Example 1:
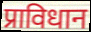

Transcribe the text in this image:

प्राविधान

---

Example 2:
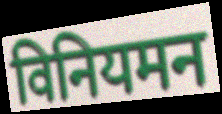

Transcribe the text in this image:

विनियमन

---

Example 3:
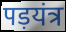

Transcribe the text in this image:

पड़यंत्र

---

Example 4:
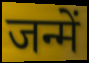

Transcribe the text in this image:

जन्में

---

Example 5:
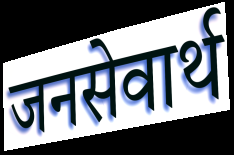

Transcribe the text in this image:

जनसेवार्थ